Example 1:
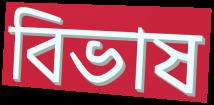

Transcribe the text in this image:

বিভাষ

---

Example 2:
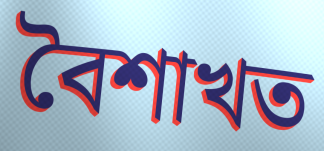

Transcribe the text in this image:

বৈশাখত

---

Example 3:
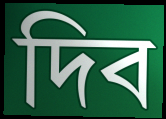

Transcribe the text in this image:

দিব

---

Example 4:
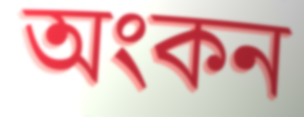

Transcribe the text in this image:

অংকন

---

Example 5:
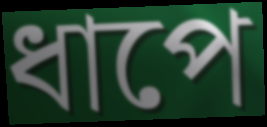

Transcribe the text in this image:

ধাপে